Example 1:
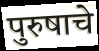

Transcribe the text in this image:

पुरुषाचे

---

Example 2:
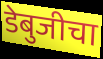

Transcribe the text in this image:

डेबुजीचा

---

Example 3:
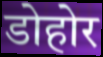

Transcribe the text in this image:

डोहोर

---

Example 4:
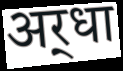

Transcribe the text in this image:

अर्धा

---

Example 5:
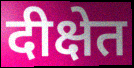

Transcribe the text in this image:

दीक्षेत